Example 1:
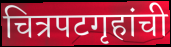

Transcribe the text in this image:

चित्रपटगृहांची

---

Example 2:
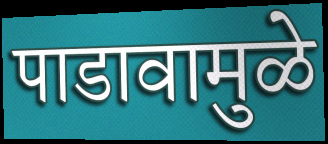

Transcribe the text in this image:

पाडावामुळे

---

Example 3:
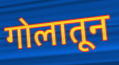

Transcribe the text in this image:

गोलातून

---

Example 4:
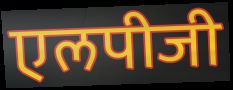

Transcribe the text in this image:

एलपीजी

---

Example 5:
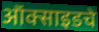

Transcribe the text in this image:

ऑक्साइडचे